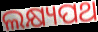
ଲକ୍ଷ୍ୟପଥ